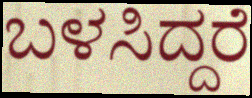
ಬಳಸಿದ್ದರೆ